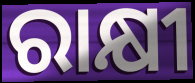
ରାକ୍ଷୀ